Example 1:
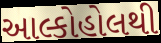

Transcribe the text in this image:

આલ્કોહોલથી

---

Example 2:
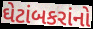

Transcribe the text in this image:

ઘેટાંબકરાંનો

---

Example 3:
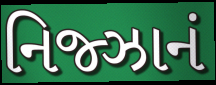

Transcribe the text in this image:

નિજ્ઝાનં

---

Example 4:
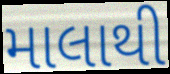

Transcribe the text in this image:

માલાથી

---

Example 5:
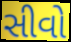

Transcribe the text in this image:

સીવો